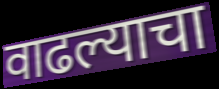
वाढल्याचा